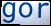
gor